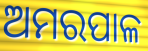
ଅମରପାଳ